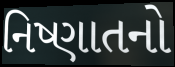
નિષ્ણાતનો